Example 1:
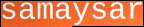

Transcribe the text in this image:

samaysar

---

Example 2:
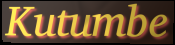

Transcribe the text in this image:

Kutumbe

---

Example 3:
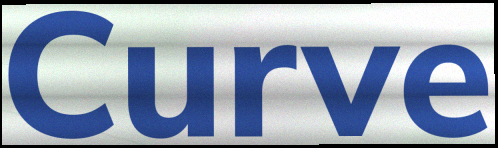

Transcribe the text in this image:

Curve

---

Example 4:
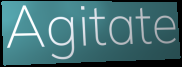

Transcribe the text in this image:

Agitate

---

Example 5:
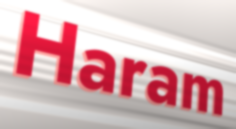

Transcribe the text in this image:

Haram